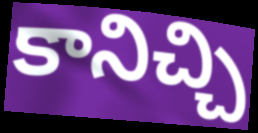
కానిచ్చి